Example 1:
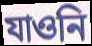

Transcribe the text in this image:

যাওনি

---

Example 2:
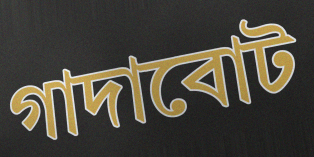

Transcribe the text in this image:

গাদাবোট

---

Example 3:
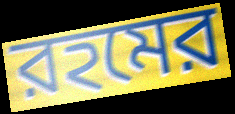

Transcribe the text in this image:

রহমের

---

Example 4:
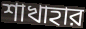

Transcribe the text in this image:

শাখাহার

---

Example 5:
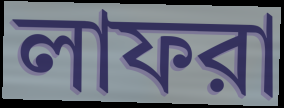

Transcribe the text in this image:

লাফরা